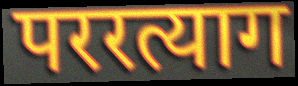
पररत्याग